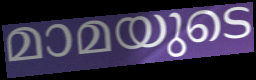
മാമയുടെ